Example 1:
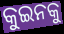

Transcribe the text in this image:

କୁଇନକୁ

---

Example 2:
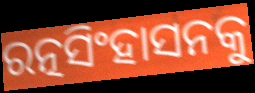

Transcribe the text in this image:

ରତ୍ନସିଂହାସନକୁ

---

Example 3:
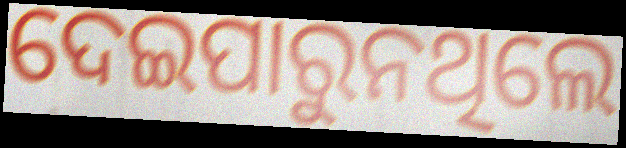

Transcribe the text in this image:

ଦେଇପାରୁନଥିଲେ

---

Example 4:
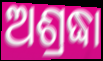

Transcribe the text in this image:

ଅଶ୍ରଦ୍ଧା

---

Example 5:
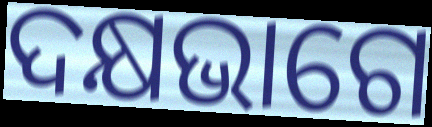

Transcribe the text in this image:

ଦକ୍ଷଭାଗେ